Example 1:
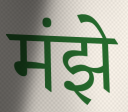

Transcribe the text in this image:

मंझे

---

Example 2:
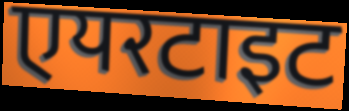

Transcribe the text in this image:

एयरटाइट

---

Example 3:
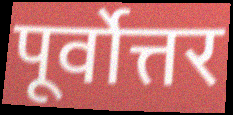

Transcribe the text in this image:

पूर्वोत्तर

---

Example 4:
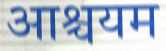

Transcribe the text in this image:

आश्चयम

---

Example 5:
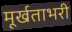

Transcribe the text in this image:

मूर्खताभरी